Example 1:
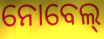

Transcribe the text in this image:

ନୋବେଲ୍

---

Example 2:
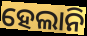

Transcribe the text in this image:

ହେଲାନି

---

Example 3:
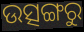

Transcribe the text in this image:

ଉତ୍ସଙ୍ଗରୁ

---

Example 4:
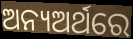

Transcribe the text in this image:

ଅନ୍ୟଅର୍ଥରେ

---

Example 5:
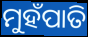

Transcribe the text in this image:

ମୁହଁପାତି